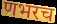
णभरच